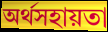
অর্থসহায়তা